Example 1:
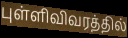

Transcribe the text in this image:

புள்ளிவிவரத்தில்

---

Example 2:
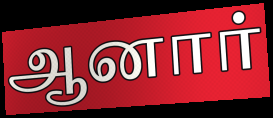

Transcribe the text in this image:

ஆனார்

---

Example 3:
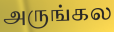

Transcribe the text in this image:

அருங்கல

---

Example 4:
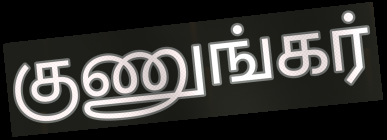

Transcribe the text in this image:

குணுங்கர்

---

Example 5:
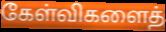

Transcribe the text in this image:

கேள்விகளைத்